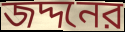
জদ্দনের